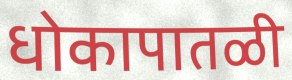
धोकापातळी